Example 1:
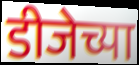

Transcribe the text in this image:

डीजेच्या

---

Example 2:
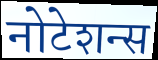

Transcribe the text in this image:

नोटेशन्स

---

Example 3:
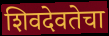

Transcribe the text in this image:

शिवदेवतेचा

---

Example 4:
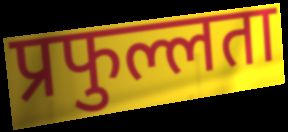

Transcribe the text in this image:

प्रफुल्लता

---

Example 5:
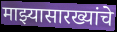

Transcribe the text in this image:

माझ्यासारख्यांचे